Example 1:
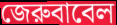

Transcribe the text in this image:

জেরুবাবেল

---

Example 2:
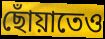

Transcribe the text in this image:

ছোঁয়াতেও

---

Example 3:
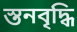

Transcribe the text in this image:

স্তনবৃদ্ধি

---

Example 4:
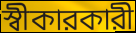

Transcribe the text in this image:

স্বীকারকারী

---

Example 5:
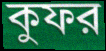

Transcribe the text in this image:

কুফর